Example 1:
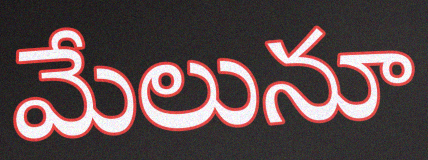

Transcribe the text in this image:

మేలునూ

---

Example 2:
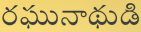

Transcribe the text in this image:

రఘునాథుడి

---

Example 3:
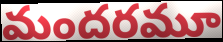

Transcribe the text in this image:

మందరమూ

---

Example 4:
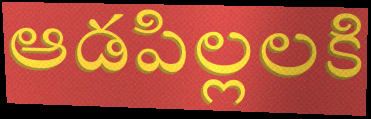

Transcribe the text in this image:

ఆడపిల్లలకి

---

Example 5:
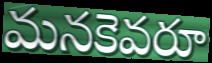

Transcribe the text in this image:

మనకెవరూ